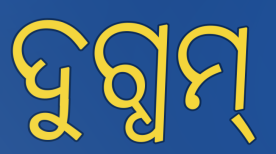
ଦୁଗ୍ଧମ୍